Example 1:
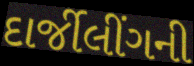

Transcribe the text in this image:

દાર્જીલીંગની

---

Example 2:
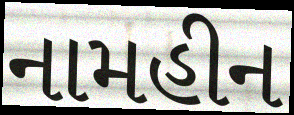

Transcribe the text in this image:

નામહીન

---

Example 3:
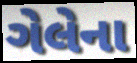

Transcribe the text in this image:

ગેલેના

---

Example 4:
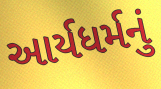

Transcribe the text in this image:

આર્યધર્મનું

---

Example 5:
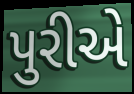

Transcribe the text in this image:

પુરીએ